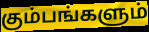
கும்பங்களும்